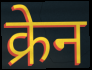
क्रेन